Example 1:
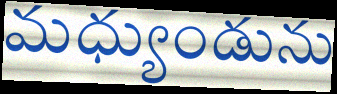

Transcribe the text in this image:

మధ్యుండును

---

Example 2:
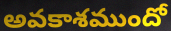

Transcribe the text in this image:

అవకాశముందో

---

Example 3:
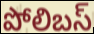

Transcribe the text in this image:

పోలిబస్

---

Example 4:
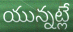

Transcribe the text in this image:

యున్నట్లే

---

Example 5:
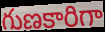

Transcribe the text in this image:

గుణకారిగా